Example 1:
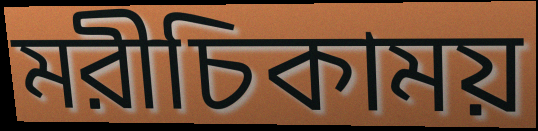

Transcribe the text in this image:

মরীচিকাময়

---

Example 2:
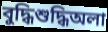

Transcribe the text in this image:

বুদ্ধিশুদ্ধিঅলা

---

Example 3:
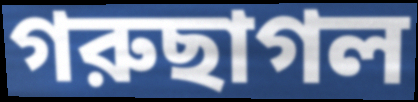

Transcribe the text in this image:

গরুছাগল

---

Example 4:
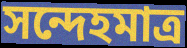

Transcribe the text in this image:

সন্দেহমাত্র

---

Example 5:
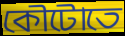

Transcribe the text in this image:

কৌটোতে